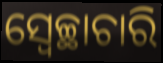
ସ୍ଵେଚ୍ଛାଚାରି